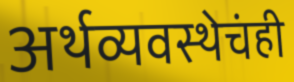
अर्थव्यवस्थेचंही